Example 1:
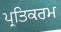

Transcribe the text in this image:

ਪ੍ਰਤਿਕਰਮ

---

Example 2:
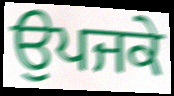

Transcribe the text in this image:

ਉਪਜਕੇ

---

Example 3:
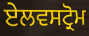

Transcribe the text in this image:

ਏਲਵਸਟ੍ਰੋਮ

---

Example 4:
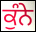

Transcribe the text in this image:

ਕੁੰਨੇ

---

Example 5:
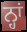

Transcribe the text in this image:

ਨ੍ਹਾਂ